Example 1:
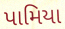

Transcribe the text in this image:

પામિયા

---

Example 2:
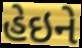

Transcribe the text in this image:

હેઇને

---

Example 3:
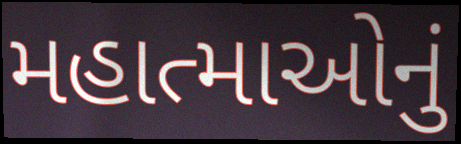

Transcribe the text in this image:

મહાત્માઓનું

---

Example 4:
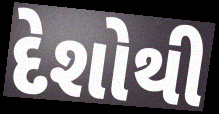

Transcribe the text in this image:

દેશોથી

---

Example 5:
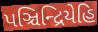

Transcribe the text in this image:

પઞ્ચિન્દ્રિયેહિ